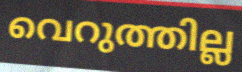
വെറുത്തില്ല